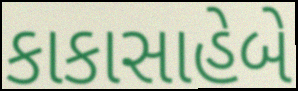
કાકાસાહેબે